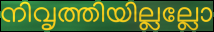
നിവൃത്തിയില്ലല്ലോ